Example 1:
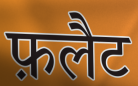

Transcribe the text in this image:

फ़लैट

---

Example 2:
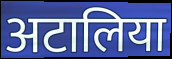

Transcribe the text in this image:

अटालिया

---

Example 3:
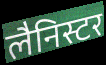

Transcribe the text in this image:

लैनिस्टर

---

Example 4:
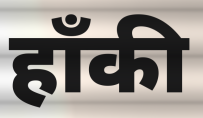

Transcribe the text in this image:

हॉंकी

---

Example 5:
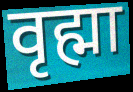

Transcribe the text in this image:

वृह्मा